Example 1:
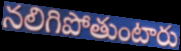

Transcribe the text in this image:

నలిగిపోతుంటారు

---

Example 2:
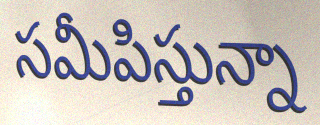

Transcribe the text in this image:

సమీపిస్తున్నా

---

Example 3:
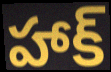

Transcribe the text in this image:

హాక్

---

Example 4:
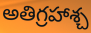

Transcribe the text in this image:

అతిగ్రహాశ్చ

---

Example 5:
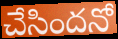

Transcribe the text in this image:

చేసిందనో